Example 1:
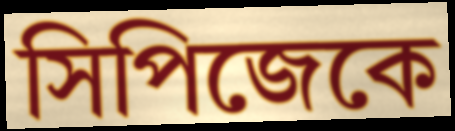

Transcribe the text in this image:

সিপিজেকে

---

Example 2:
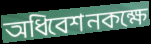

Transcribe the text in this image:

অধিবেশনকক্ষে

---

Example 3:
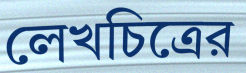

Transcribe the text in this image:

লেখচিত্রের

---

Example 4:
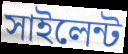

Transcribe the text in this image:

সাইলেন্ট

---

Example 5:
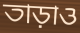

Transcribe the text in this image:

তাড়াও